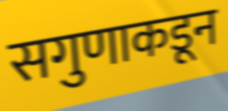
सगुणाकडून